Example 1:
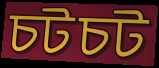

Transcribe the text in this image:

চটচট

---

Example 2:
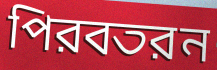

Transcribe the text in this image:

পিরবতরন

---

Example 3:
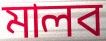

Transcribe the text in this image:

মালব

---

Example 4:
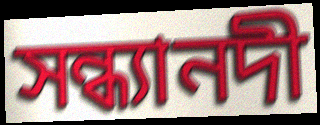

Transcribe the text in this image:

সন্ধ্যানদী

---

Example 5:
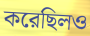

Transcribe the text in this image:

করেছিলও